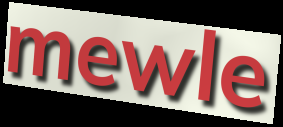
mewle